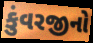
કુંવરજીનો